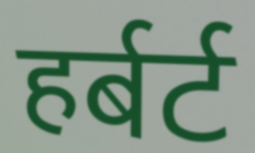
हर्बर्ट